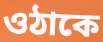
ওঠাকে